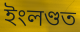
ইংলণ্ডত